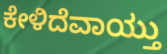
ಕೇಳಿದೆವಾಯ್ತು